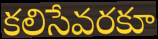
కలిసేవరకూ